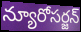
న్యూరోసర్జన్